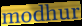
modhur